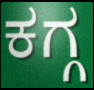
ಕಗ್ಗ